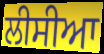
ਲੀਸੀਆ